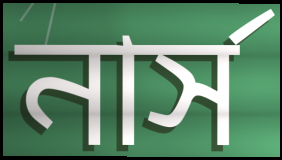
নার্স